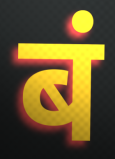
बं